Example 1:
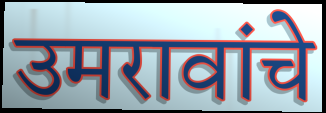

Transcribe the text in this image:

उमरावांचे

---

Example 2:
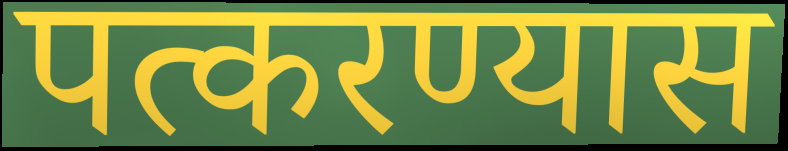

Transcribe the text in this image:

पत्करण्यास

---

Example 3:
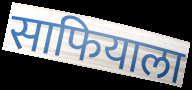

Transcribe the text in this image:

साफियाला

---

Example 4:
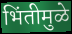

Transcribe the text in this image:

भिंतीमुळे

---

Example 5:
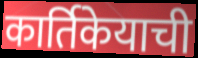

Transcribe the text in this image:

कार्तिकेयाची